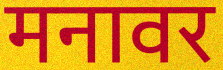
मनावर